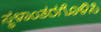
ಸ್ಥಳಾಂತರಗೊಳಿಸಿ